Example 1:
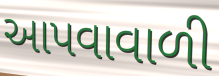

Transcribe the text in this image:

આપવાવાળી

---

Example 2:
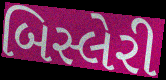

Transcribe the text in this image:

બિસ્લેરી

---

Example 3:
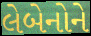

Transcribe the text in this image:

લેબેનોને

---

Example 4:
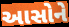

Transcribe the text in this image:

આસોને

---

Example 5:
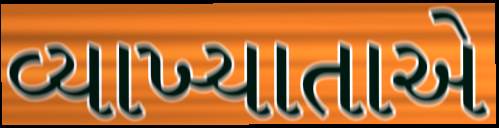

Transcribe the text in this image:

વ્યાખ્યાતાએ